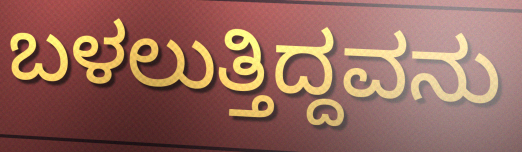
ಬಳಲುತ್ತಿದ್ದವನು